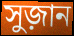
সুজ়ান